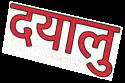
दयालु